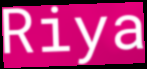
Riya